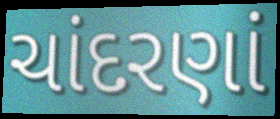
ચાંદરણાં